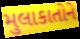
મુલાકાતોને